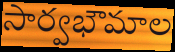
సార్వభౌమాల